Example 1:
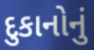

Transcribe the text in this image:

દુકાનોનું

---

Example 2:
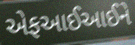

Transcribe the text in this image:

એફઆઈઆઈને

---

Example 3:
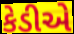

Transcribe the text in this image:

કેડીએ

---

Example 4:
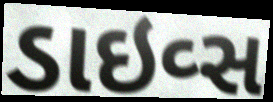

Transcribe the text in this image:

ડાઇવ્સ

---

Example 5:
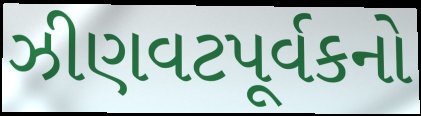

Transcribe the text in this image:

ઝીણવટપૂર્વકનો